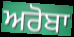
ਅਰੋਬਾ